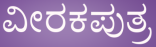
ವೀರಕಪುತ್ರ